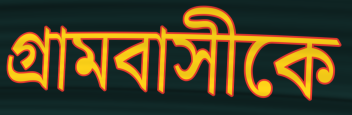
গ্রামবাসীকে